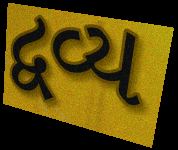
દ્વવ્ય